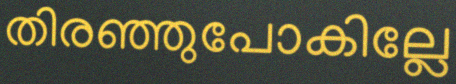
തിരഞ്ഞുപോകില്ലേ